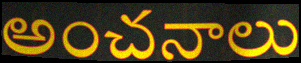
అంచనాలు